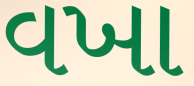
વખા